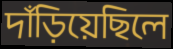
দাঁড়িয়েছিলে